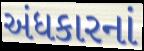
અંધકારનાં